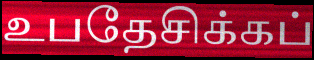
உபதேசிக்கப்